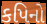
કપિનો